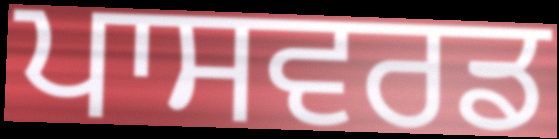
ਪਾਸਵਰਡ